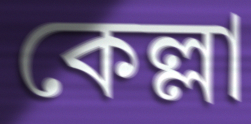
কেল্লা